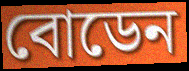
বোডেন